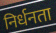
निर्धनता